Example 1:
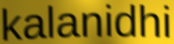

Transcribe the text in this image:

kalanidhi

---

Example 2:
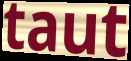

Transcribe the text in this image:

taut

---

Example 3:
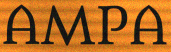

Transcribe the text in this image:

AMPA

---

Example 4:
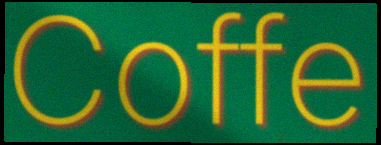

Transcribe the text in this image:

Coffe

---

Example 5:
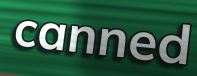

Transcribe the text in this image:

canned